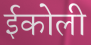
ईकोली